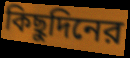
কিছুদিনের